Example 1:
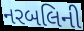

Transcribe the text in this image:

નરબલિની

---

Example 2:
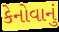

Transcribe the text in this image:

કેનોવાનું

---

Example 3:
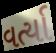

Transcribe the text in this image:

વર્ત્યા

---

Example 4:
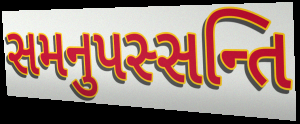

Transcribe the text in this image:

સમનુપસ્સન્તિ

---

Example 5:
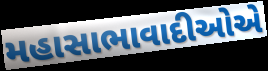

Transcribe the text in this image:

મહાસાભાવાદીઓએ